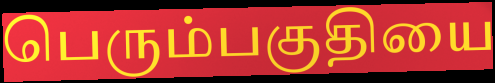
பெரும்பகுதியை